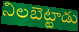
నిలబెట్టాడు